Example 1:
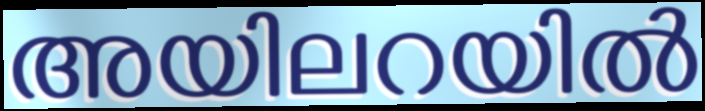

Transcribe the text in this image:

അയിലറയിൽ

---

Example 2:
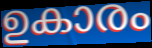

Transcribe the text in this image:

ഉകാരം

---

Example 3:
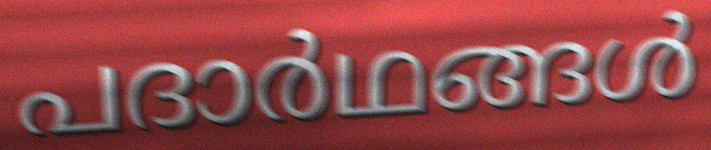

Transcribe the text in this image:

പദാർഥങ്ങൾ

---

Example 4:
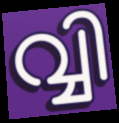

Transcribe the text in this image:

വ്വി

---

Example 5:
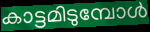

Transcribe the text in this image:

കാട്ടമിടുമ്പോൾ